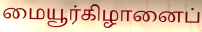
மையூர்கிழானைப்